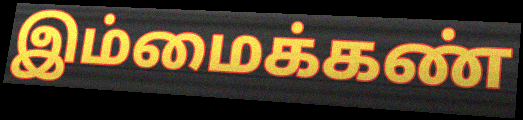
இம்மைக்கண்